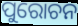
ପୁରୋଚନ